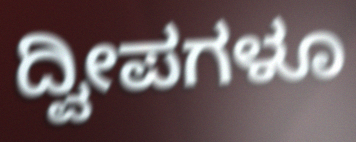
ದ್ವೀಪಗಳೂ